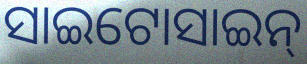
ସାଇଟୋସାଇନ୍